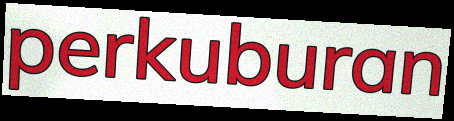
perkuburan